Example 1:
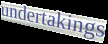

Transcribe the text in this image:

undertakings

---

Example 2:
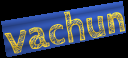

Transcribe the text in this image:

vachun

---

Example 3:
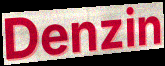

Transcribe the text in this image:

Denzin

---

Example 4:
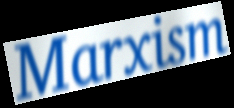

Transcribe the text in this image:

Marxism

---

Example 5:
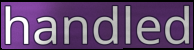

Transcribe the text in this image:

handled